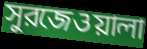
সুরজেওয়ালা